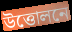
উত্তোলনে